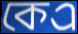
কেএ